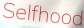
Selfhood